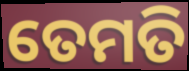
ତେମତି